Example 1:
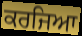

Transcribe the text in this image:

ਕਰਜਿਆ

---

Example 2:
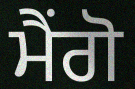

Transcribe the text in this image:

ਮੈਂਗੋ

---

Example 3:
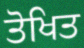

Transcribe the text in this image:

ਤੋਖਿਤ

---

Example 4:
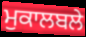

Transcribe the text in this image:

ਮੁਕਾਲਬਲੇ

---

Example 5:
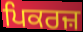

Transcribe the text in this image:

ਪਿਕਰਜ਼